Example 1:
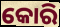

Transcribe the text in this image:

କୋରି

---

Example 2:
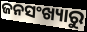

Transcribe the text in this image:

ଜନସଂଖ୍ୟାରୁ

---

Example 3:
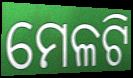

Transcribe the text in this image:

ମେଳଟି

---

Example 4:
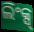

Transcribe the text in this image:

ଲିଂକ୍ସ୍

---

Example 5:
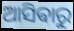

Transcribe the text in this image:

ଆସିଵାରୁ